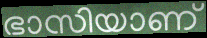
ഭാസിയാണ്